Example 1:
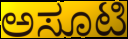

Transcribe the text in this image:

ಅಸೂಟಿ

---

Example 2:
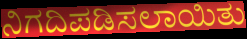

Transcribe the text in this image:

ನಿಗದಿಪಡಿಸಲಾಯಿತು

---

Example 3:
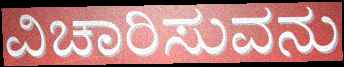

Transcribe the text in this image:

ವಿಚಾರಿಸುವನು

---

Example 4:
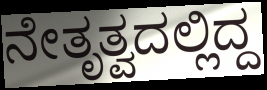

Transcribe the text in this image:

ನೇತೃತ್ವದಲ್ಲಿದ್ದ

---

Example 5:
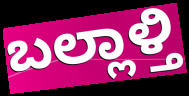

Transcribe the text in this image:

ಬಲ್ಲಾಳ್ತಿ